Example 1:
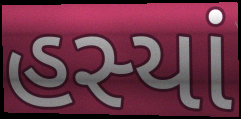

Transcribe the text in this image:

હસ્યાં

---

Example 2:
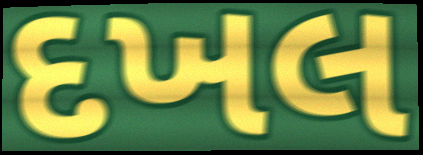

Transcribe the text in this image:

દખલ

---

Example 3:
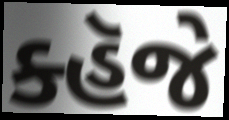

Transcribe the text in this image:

ક્હૅજે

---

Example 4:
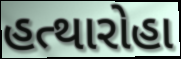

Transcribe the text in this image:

હત્થારોહા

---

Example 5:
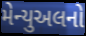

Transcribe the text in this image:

મેન્યુઅલનો